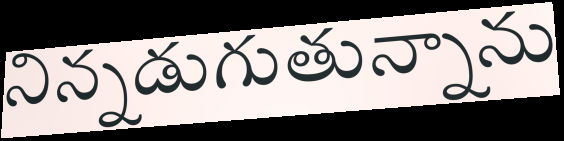
నిన్నడుగుతున్నాను